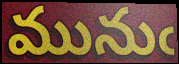
మునుఁ